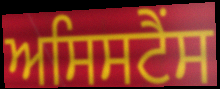
ਅਸਿਸਟੈਂਸ